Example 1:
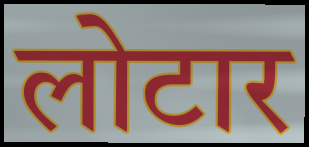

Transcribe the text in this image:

लोटार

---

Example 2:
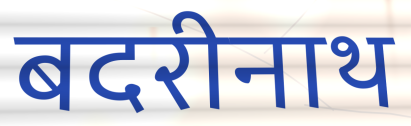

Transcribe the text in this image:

बदरीनाथ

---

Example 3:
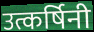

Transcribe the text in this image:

उत्कर्षिनी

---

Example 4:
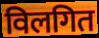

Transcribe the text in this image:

विलगित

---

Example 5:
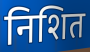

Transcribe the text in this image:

निशित